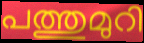
പത്തുമുറി